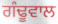
ਗੰਢੂਵਾਲ